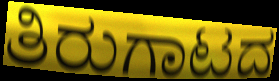
ತಿರುಗಾಟದ